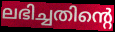
ലഭിച്ചതിന്റെ